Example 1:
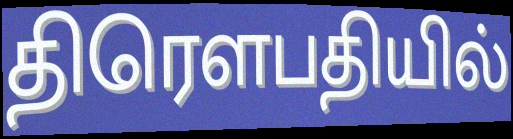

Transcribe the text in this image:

திரௌபதியில்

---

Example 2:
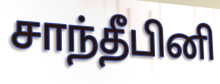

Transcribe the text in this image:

சாந்தீபினி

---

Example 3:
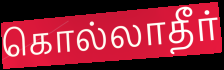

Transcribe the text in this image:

கொல்லாதீர்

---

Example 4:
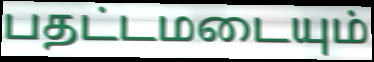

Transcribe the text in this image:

பதட்டமடையும்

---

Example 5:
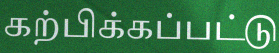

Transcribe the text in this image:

கற்பிக்கப்பட்டு